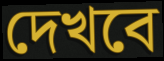
দেখবে